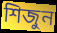
শিজুন